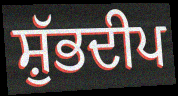
ਸ਼ੁੱਭਦੀਪ